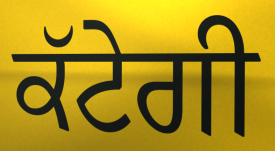
ਕੱਟੇਗੀ